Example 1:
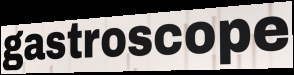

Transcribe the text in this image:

gastroscope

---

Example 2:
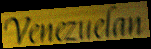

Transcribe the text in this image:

Venezuelan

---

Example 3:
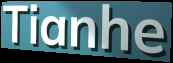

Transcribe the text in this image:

Tianhe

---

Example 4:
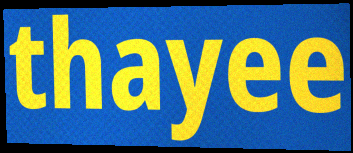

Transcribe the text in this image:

thayee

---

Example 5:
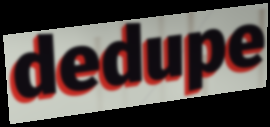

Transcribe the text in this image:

dedupe